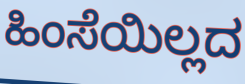
ಹಿಂಸೆಯಿಲ್ಲದ